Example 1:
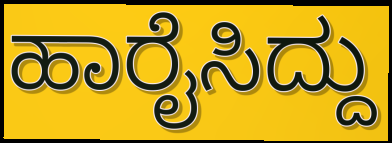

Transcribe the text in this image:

ಹಾರೈಸಿದ್ದು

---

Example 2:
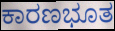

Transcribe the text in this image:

ಕಾರಣಭೂತ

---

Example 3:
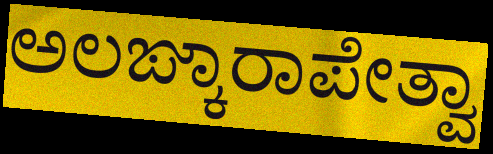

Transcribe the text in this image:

ಅಲಙ್ಕಾರಾಪೇತ್ವಾ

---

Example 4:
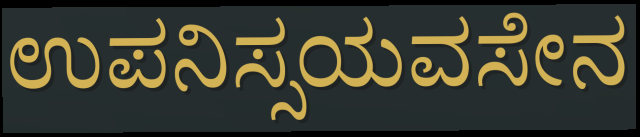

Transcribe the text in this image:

ಉಪನಿಸ್ಸಯವಸೇನ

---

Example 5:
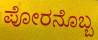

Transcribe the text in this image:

ಪೋರನೊಬ್ಬ